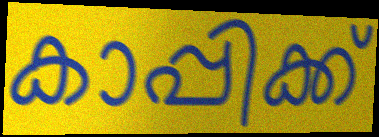
കാപ്പിക്ക്